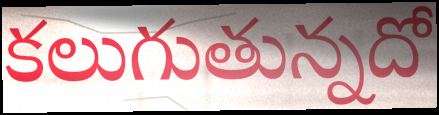
కలుగుతున్నదో